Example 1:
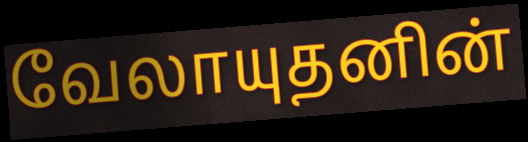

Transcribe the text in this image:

வேலாயுதனின்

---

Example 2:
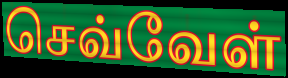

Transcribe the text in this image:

செவ்வேள்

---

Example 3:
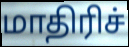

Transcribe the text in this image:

மாதிரிச்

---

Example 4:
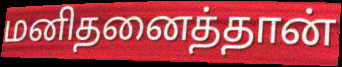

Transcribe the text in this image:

மனிதனைத்தான்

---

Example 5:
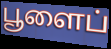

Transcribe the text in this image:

பூளைப்